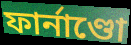
ফাৰ্নাণ্ডো